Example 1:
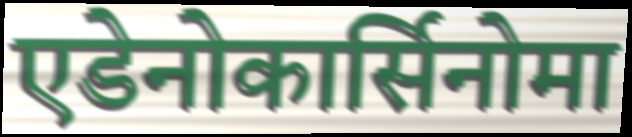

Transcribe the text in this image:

एडेनोकार्सिनोमा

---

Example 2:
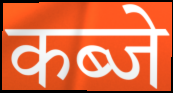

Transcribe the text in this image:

कब्जे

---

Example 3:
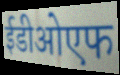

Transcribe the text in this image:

ईडीओएफ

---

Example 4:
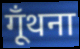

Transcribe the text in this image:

गूँथना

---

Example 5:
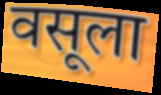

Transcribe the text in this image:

वसूला